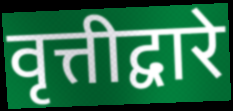
वृत्तीद्वारे